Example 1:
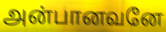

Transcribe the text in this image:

அன்பானவனே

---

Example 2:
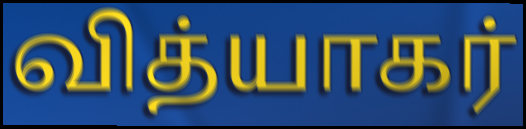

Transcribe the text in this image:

வித்யாகர்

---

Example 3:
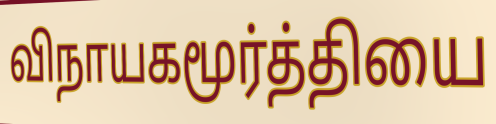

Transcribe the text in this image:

விநாயகமூர்த்தியை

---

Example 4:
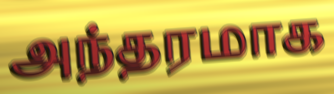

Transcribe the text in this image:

அந்தரமாக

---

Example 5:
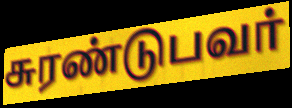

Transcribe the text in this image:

சுரண்டுபவர்